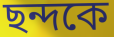
ছন্দকে